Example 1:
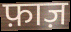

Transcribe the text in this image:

फ़ाज़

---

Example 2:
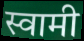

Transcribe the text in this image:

स्‍वामी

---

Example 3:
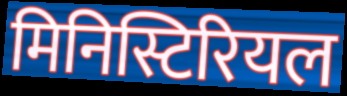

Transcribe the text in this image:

मिनिस्टिरियल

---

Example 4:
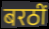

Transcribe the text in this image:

बरठीं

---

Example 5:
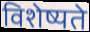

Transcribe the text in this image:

विशेष्यते